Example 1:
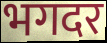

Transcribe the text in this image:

भगदर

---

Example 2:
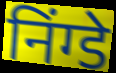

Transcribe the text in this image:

निंग्डे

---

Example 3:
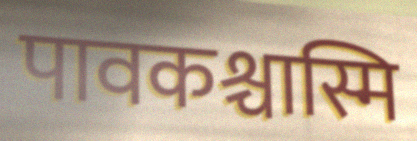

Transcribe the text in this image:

पावकश्चास्मि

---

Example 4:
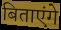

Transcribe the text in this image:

बिताएंगे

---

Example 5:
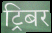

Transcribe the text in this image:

ट्रिबर